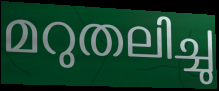
മറുതലിച്ചു